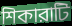
শিকারাটি